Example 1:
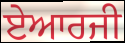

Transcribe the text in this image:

ਏਆਰਜੀ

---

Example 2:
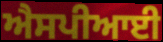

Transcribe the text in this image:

ਐਸਪੀਆਈ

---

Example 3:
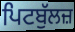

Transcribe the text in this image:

ਪਿਟਬੁੱਲਜ਼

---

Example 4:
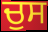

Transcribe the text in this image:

ਚੁਸ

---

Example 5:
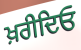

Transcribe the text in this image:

ਖ਼ਰੀਦਿਓ